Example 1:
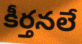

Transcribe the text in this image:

కీర్తనలే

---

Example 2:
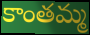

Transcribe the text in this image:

కాంతమ్మ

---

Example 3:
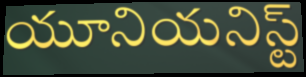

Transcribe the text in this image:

యూనియనిస్ట్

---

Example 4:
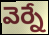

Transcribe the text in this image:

వెర్నే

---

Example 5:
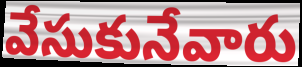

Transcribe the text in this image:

వేసుకునేవారు